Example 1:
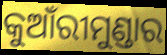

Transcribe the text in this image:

କୁଆଁରୀମୁଣ୍ଡାର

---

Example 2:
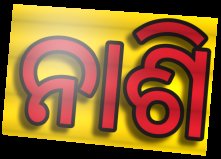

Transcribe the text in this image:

ନାଶି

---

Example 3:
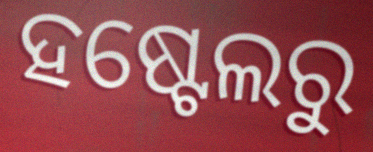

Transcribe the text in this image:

ହଷ୍ଟେଲରୁ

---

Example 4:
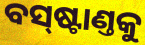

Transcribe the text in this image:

ବସ୍‌ଷ୍ଟାଣ୍ତକୁ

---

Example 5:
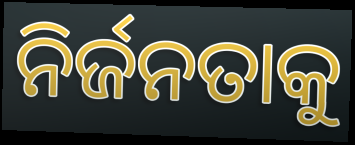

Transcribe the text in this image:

ନିର୍ଜନତାକୁ